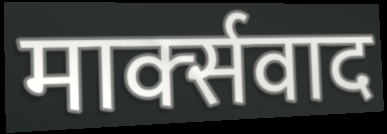
मार्क्‍सवाद